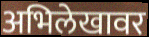
अभिलेखावर